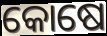
କୋଷେ